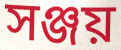
সঞ্জয়